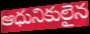
ఆధునికులైన